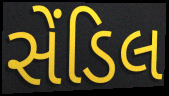
સેંડિલ